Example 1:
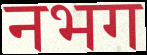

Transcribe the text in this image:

नभग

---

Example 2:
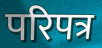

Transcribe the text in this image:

परिपत्र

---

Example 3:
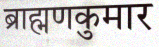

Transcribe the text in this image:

ब्राह्मणकुमार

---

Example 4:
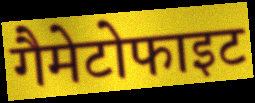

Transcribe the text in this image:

गैमेटोफाइट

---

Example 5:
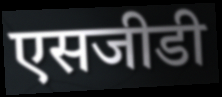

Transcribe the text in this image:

एसजीडी